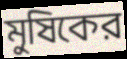
মুষিকের